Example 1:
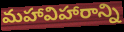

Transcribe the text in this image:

మహావిహారాన్ని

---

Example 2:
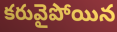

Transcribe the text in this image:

కరువైపోయిన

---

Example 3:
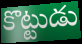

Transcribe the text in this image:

కొట్టుడు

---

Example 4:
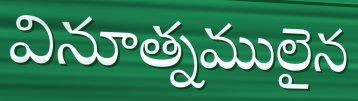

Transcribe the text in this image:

వినూత్నములైన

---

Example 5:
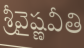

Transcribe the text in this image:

శ్రీవైష్ణవీతి